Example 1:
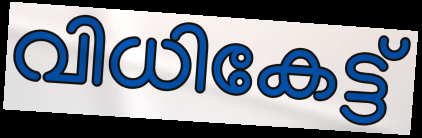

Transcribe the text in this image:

വിധികേട്ട്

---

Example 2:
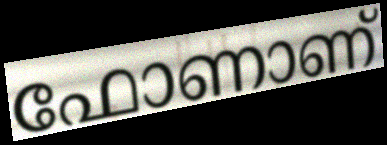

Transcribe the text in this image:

ഫോണാണ്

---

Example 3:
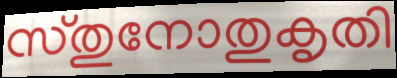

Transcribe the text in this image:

സ്തുനോതുകൃതി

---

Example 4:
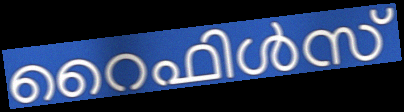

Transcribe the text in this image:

റൈഫിൾസ്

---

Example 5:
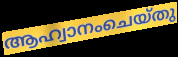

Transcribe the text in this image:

ആഹ്വാനംചെയ്തു